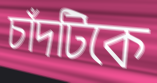
চাঁদটিকে